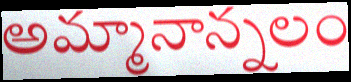
అమ్మానాన్నలం